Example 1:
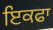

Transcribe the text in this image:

ਇਕਫਾ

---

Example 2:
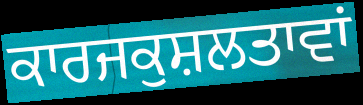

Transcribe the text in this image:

ਕਾਰਜਕੁਸ਼ਲਤਾਵਾਂ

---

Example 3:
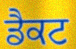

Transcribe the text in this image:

ਡੈਕਟ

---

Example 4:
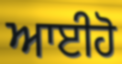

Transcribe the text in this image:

ਆਈਹੋ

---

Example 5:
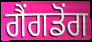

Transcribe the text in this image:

ਗੈਂਗਡੋਂਗ